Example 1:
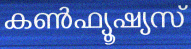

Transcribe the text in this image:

കൺഫ്യൂഷ്യസ്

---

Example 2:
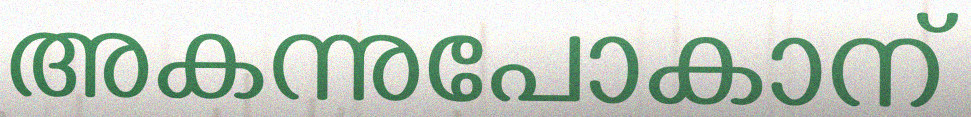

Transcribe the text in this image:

അകന്നുപോകാന്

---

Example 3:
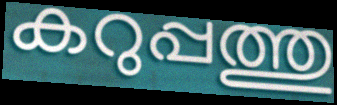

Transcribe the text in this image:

കറുപ്പത്തു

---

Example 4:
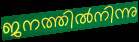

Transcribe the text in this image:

ജനത്തിൽനിന്നു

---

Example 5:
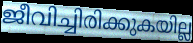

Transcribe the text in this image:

ജീവിച്ചിരിക്കുകയില്ല